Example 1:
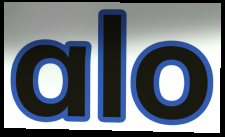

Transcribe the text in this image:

alo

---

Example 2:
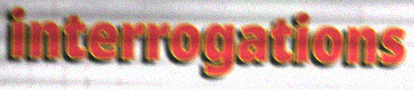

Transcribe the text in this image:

interrogations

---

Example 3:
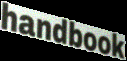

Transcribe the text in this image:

handbook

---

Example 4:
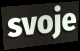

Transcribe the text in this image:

svoje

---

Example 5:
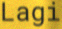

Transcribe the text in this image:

Lagi